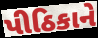
પીઠિકાને